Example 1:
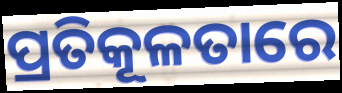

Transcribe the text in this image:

ପ୍ରତିକୂଳତାରେ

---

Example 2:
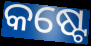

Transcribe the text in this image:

କଷ୍ଟେ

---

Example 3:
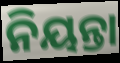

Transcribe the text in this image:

ନିୟନ୍ତା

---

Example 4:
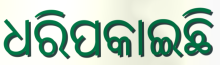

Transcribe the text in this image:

ଧରିପକାଇଛି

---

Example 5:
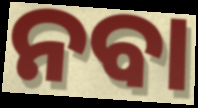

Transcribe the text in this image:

ନବା